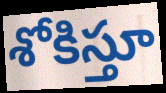
శోకిస్తూ